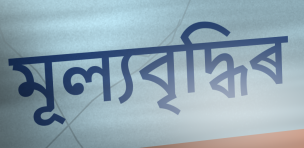
মূল্যবৃদ্ধিৰ